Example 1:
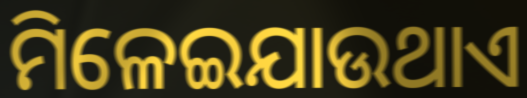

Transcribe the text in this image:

ମିଳେଇଯାଉଥାଏ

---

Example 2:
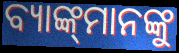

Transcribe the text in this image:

ବ୍ୟାଙ୍କ୍‌ମାନଙ୍କୁ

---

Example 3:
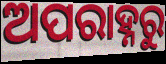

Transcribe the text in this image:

ଅପରାହ୍ନରୁ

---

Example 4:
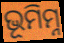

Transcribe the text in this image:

ଭୂମିମ୍ନ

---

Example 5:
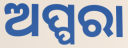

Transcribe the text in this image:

ଅପ୍ପରା